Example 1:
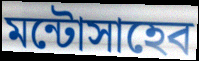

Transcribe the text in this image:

মন্টোসাহেব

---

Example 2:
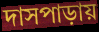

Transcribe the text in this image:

দাসপাড়ায়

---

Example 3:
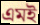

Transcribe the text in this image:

এমই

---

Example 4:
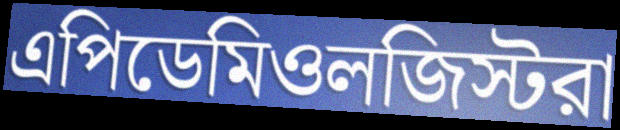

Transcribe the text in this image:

এপিডেমিওলজিস্টরা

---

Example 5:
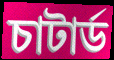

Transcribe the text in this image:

চাটার্ড